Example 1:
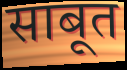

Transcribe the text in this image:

साबूत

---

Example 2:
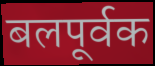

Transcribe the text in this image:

बलपूर्वक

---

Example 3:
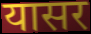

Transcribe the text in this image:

यासर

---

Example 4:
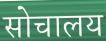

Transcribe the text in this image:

सोचालय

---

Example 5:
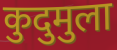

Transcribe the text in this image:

कुदुमुला